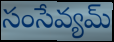
సంసేవ్యమ్